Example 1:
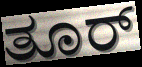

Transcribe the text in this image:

ತೂರ್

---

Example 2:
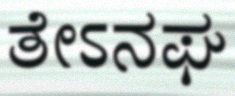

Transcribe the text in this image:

ತೇಽನಘ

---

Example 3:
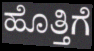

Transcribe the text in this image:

ಹೊತ್ತಿಗೆ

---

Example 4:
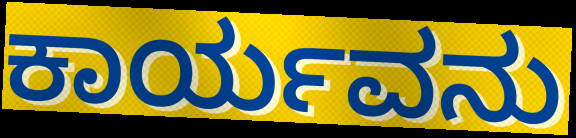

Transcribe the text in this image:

ಕಾರ್ಯವನು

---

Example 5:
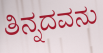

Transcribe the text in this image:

ತಿನ್ನದವನು